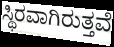
ಸ್ಥಿರವಾಗಿರುತ್ತವೆ